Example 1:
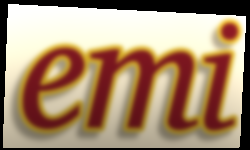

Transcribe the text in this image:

emi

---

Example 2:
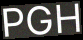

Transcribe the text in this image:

PGH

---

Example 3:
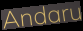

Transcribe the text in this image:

Andaru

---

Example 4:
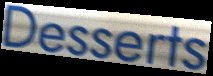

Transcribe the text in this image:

Desserts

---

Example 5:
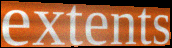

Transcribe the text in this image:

extents